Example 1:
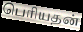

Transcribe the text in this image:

பெரியதன்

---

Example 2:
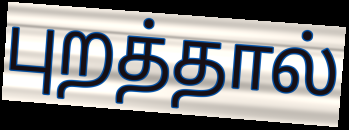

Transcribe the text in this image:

புறத்தால்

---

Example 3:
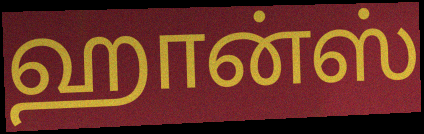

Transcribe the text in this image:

ஹான்ஸ்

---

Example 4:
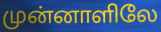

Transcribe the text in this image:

முன்னாளிலே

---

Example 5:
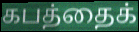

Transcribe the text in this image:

கபத்தைக்